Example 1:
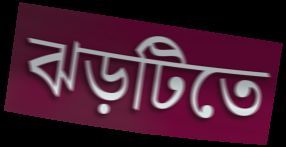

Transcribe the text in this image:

ঝড়টিতে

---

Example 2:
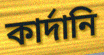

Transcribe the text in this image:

কার্দানি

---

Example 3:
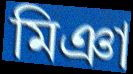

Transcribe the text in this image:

মিঞা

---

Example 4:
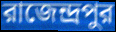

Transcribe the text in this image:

রাজেন্দ্রপুর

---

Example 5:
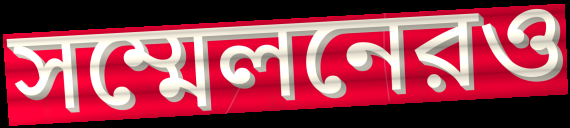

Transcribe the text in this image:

সম্মেলনেরও